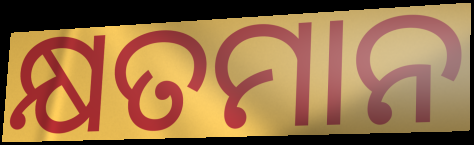
କ୍ଷତମାନ